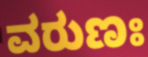
ವರುಣಃ